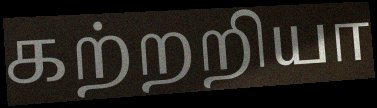
கற்றறியா